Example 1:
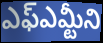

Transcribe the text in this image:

ఎఫ్ఎమ్టీని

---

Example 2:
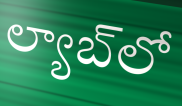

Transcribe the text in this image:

ల్యాబ్‌లో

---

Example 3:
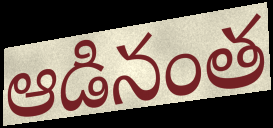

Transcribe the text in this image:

ఆడినంత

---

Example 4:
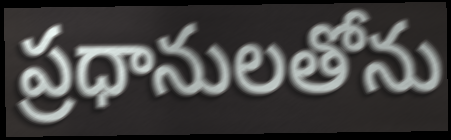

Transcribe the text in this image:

ప్రధానులతోను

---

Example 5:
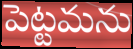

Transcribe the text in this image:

పెట్టమను